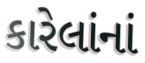
કારેલાંનાં